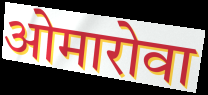
ओमारोवा